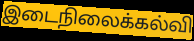
இடைநிலைக்கல்வி